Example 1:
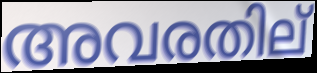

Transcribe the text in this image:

അവരതില്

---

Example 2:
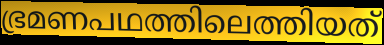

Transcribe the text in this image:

ഭ്രമണപഥത്തിലെത്തിയത്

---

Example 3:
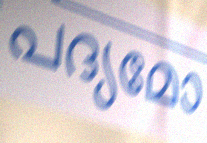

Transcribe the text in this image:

പദ്യമോ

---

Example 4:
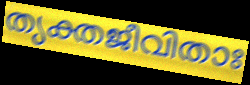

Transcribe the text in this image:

ത്യക്തജീവിതാഃ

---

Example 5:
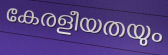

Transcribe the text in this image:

കേരളീയതയും